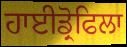
ਹਾਈਡ੍ਰੋਫਿਲਾ